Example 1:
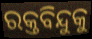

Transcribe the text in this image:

ରକ୍ତବିନ୍ଦୁକୁ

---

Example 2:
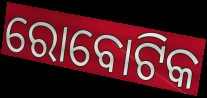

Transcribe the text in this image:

ରୋବୋଟିକ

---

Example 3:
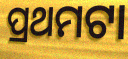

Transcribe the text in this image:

ପ୍ରଥମଟା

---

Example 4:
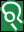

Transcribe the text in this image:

ର୍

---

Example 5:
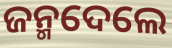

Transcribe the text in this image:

ଜନ୍ମଦେଲେ